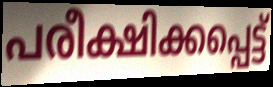
പരീക്ഷിക്കപ്പെട്ട്